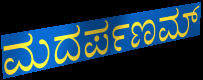
ಮದರ್ಪಣಮ್